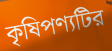
কৃষিপণ্যটির